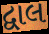
દ્વાલ